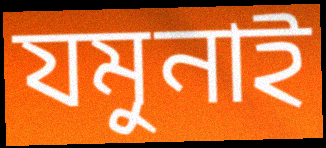
যমুনাই